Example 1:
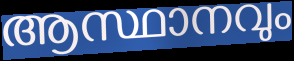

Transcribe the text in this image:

ആസ്ഥാനവും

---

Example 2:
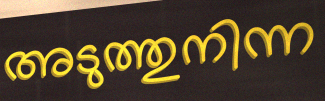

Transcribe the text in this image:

അടുത്തുനിന്ന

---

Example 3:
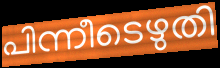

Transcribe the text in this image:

പിന്നീടെഴുതി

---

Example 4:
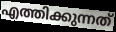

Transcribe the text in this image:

എത്തിക്കുന്നത്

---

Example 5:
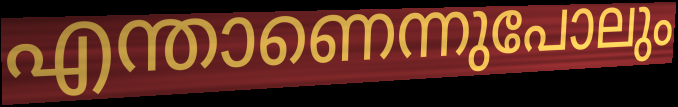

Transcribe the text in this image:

എന്താണെന്നുപോലും